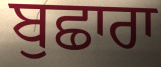
ਬੁਛਾਰਾ